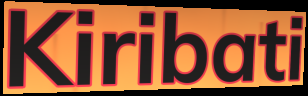
Kiribati